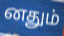
னதும்